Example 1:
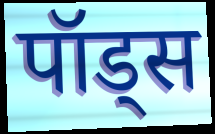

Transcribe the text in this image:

पॉड्स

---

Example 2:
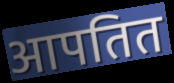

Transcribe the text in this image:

आपतित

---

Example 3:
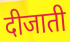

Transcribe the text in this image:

दीजाती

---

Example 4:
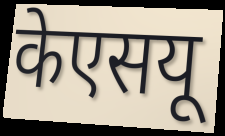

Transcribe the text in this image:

केएसयू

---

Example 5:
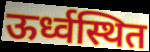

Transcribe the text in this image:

ऊर्ध्वस्थित